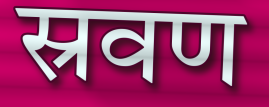
स्रवण